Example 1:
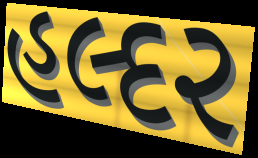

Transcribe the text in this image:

હલ્દર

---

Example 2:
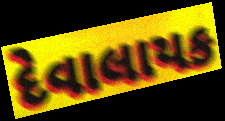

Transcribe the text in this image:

દેવાલાયક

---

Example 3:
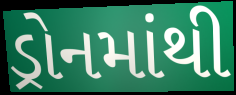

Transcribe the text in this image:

ડ્રોનમાંથી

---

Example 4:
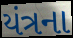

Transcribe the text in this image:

યંત્રના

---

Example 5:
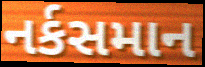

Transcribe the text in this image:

નર્કસમાન